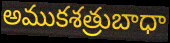
అముకశత్రుబాధా